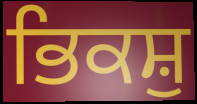
ਭਿਕਸ਼ੁ